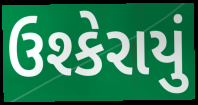
ઉશ્કેરાયું